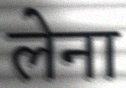
लेना